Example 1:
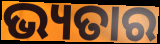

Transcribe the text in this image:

ଭ୍ୟତାର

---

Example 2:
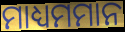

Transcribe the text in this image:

ମାଧ୍ୟମମାନ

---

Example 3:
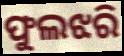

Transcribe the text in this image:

ଫୁଲଝରି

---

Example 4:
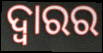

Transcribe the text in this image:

ଦ୍ୱାରର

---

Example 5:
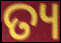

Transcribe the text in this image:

ତ୍ୟ